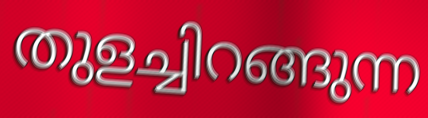
തുളച്ചിറങ്ങുന്ന